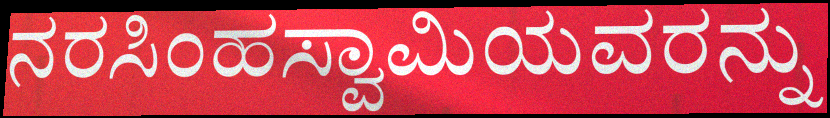
ನರಸಿಂಹಸ್ವಾಮಿಯವರನ್ನು